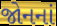
જોનનાં